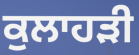
ਕੁਲਾਹੜੀ